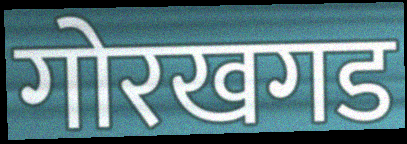
गोरखगड